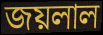
জয়লাল